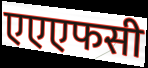
एएएफसी